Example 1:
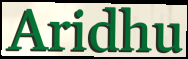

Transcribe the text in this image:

Aridhu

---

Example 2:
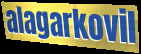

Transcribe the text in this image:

alagarkovil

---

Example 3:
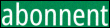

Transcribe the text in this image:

abonnent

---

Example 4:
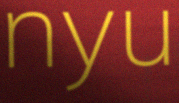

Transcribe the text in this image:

nyu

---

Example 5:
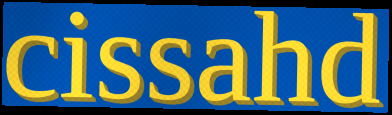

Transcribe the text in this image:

cissahd